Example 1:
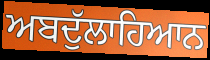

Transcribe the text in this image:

ਅਬਦੁੱਲਾਹਿਆਨ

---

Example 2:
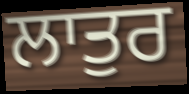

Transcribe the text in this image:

ਲਾਤੁਰ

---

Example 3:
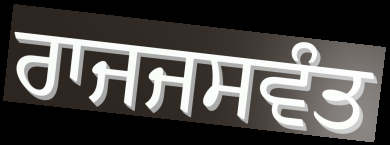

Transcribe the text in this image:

ਰਾਜਜਸਵੰਤ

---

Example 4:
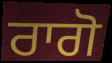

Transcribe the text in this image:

ਰਾਗੋ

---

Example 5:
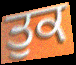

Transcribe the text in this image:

ਤੁਕ